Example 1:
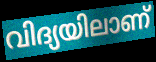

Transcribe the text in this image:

വിദ്യയിലാണ്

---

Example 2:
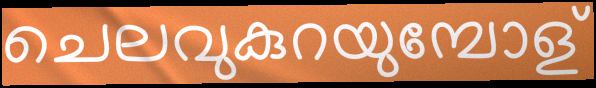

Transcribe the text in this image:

ചെലവുകുറയുമ്പോള്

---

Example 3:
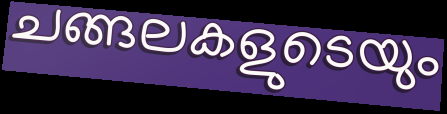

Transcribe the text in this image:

ചങ്ങലകളുടെയും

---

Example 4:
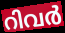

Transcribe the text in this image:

റിവർ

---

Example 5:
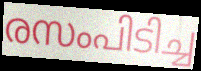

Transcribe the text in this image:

രസംപിടിച്ച